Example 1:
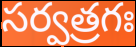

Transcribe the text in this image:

సర్వత్రగః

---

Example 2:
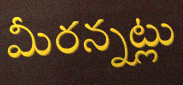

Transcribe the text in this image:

మీరన్నట్లు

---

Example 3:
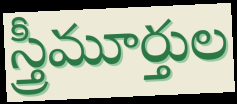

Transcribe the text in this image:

స్త్రీమూర్తుల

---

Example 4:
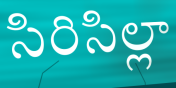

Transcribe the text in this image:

సిరిసిల్లా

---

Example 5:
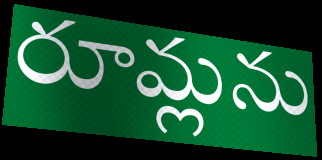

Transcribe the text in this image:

రూమ్లను